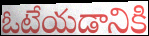
ఓటేయడానికి